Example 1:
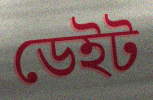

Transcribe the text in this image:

ডেইট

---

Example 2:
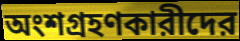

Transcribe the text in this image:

অংশগ্রহণকারীদের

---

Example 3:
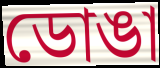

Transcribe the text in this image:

ডোঙা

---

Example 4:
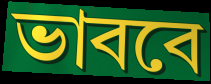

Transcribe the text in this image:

ভাববে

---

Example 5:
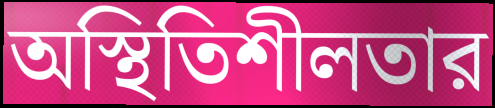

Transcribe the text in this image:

অস্থিতিশীলতার